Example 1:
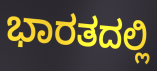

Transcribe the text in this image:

ಭಾರತದಲ್ಲಿ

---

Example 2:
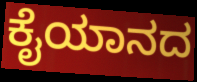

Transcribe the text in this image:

ಕೈಯಾನದ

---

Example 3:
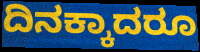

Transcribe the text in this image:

ದಿನಕ್ಕಾದರೂ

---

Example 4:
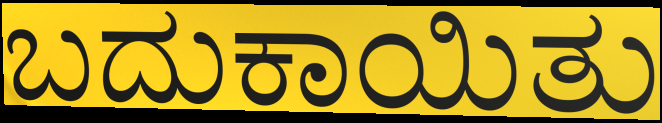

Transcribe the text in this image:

ಬದುಕಾಯಿತು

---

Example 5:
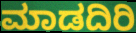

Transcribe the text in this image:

ಮಾಡದಿರಿ